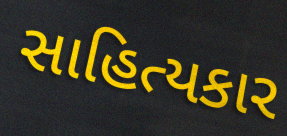
સાહિત્યકાર